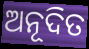
ଅନୂଦିତ